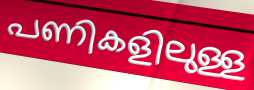
പണികളിലുള്ള